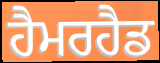
ਹੈਮਰਹੈਡ